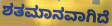
ಶತಮಾನವಾಗಿದೆ